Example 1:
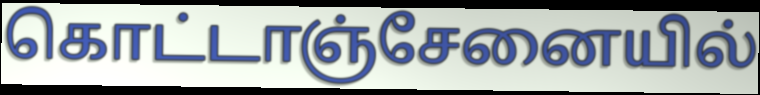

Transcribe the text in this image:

கொட்டாஞ்சேனையில்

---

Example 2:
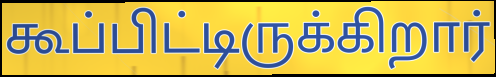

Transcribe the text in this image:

கூப்பிட்டிருக்கிறார்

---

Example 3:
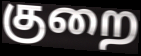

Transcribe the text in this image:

குறை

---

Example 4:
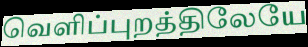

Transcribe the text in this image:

வெளிப்புறத்திலேயே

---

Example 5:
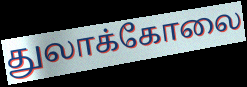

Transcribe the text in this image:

துலாக்கோலை